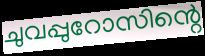
ചുവപ്പുറോസിന്റെ